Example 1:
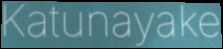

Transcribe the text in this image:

Katunayake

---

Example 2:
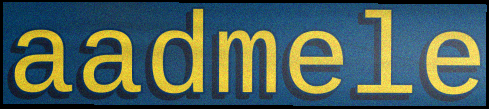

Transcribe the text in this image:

aadmele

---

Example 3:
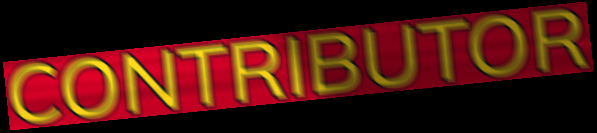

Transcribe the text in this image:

CONTRIBUTOR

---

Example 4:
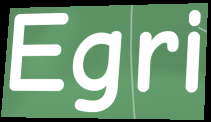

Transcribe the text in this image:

Egri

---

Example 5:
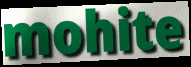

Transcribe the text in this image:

mohite